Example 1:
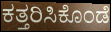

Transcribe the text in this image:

ಕತ್ತರಿಸಿಕೊಂಡೆ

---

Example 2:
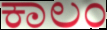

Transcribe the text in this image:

ಕಾಲಂ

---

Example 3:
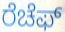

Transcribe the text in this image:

ರೆಚೆಫ್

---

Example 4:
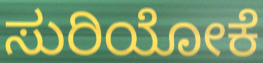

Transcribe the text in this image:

ಸುರಿಯೋಕೆ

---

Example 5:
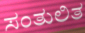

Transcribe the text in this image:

ಸಂತುಲಿತ